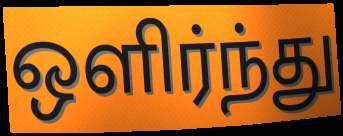
ஒளிர்ந்து